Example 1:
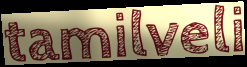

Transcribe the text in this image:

tamilveli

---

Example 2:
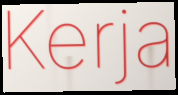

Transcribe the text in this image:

Kerja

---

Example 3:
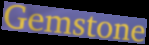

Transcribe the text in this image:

Gemstone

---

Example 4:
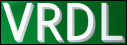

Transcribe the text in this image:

VRDL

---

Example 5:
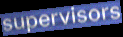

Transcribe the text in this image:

supervisors